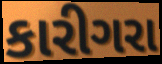
કારીગરા